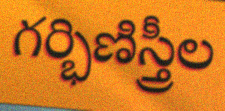
గర్భిణిస్త్రీల